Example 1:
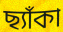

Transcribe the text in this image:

ছ্যাঁকা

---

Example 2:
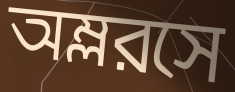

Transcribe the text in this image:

অম্লরসে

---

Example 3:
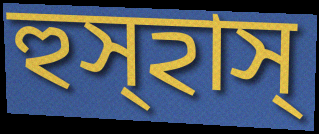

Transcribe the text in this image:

হুস্‌হাস্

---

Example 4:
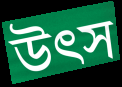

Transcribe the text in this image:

উত্‍স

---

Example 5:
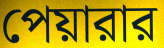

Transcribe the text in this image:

পেয়ারার